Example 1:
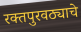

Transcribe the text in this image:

रक्तपुरवठ्याचे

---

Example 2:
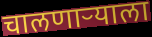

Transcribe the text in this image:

चालणाऱ्याला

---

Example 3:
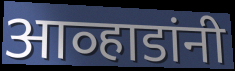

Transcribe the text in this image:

आव्हाडांनी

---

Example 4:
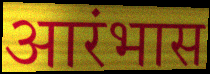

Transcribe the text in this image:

आरंभास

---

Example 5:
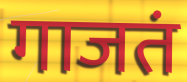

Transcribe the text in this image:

गाजतं